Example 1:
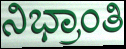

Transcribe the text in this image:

ನಿಭ್ರಾಂತಿ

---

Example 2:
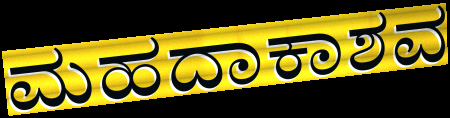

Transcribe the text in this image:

ಮಹದಾಕಾಶವ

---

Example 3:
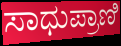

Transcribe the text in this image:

ಸಾಧುಪ್ರಾಣಿ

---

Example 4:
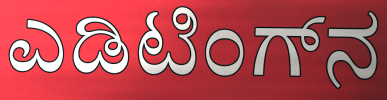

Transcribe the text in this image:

ಎಡಿಟಿಂಗ್‌ನ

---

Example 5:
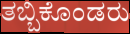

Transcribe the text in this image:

ತಬ್ಬಿಕೊಂಡರು